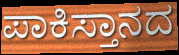
ಪಾಕಿಸ್ತಾನದ